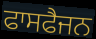
ਫਾਸਫੈਜਨ